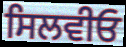
ਸਿਲਵੀਓ